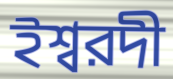
ইশ্বরদী